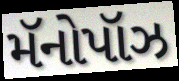
મૅનોપૉઝ